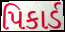
પિકાર્ડ